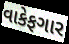
વાકેફગાર